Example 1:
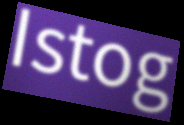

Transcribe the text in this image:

Istog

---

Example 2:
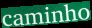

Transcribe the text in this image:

caminho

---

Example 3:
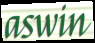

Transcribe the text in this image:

aswin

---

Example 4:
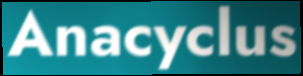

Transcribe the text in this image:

Anacyclus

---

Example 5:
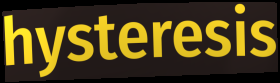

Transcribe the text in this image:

hysteresis